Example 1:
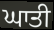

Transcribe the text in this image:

ਘਾਤੀ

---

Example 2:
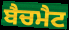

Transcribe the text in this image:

ਬੈਚਮੈਟ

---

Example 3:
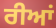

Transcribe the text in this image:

ਰੀਆਂ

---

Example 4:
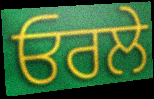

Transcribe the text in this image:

ਓਰਲੇ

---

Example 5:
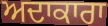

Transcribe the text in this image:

ਅਦਾਕਾਰਾ